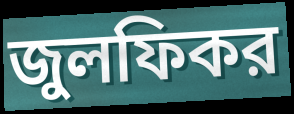
জুলফিকর